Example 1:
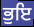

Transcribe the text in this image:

ਭੁਇ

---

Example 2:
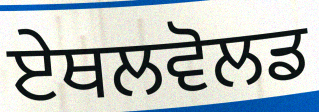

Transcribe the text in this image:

ਏਥਲਵੋਲਡ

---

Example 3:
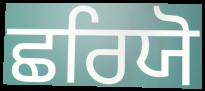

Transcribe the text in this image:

ਛਰਿਯੋ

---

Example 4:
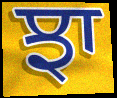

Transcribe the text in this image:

ਝਾ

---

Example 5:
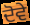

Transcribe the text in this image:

ਦੋਵੇ